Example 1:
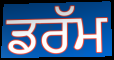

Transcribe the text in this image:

ਡਰੱਮ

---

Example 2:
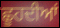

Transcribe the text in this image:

ਛੂਹਦੀਆਂ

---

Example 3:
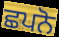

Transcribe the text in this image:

ਛਪਨੋ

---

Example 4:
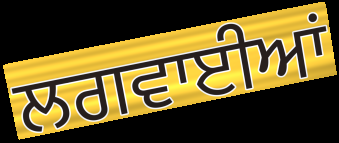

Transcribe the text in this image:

ਲਗਵਾਈਆਂ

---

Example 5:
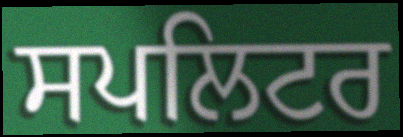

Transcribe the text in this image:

ਸਪਲਿਟਰ